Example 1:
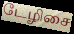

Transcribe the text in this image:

டேழிசை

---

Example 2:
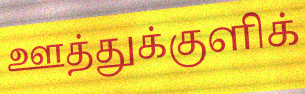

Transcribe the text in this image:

ஊத்துக்குளிக்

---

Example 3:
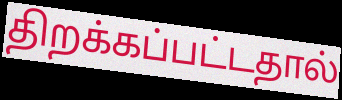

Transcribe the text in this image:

திறக்கப்பட்டதால்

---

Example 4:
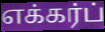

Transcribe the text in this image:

எக்கர்ப்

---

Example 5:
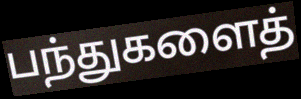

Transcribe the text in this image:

பந்துகளைத்